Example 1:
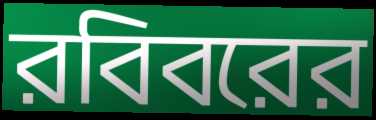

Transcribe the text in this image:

রবিবরের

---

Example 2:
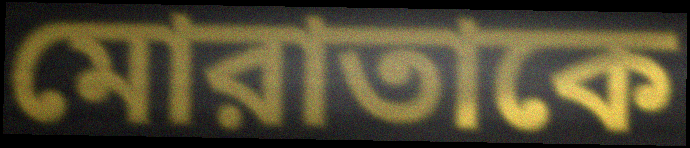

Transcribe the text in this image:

মোরাতাকে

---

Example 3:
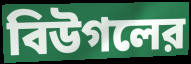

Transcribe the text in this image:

বিউগলের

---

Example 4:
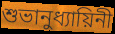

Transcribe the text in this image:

শুভানুধ্যায়িনী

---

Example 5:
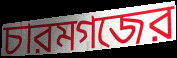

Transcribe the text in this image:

চারমগজের